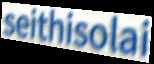
seithisolai